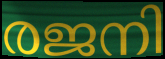
രജനി